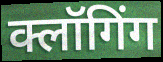
क्लॉगिंग